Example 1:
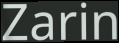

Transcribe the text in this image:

Zarin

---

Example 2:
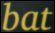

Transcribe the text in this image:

bat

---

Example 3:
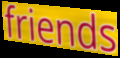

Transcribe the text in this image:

friends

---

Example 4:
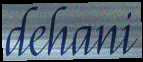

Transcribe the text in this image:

dehani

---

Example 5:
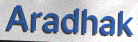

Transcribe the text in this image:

Aradhak